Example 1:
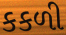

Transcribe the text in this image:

કકળી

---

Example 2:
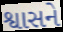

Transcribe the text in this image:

શ્વાસને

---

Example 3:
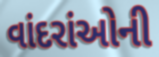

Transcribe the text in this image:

વાંદરાંઓની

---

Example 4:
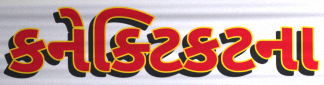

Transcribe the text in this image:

કનેક્ટિકટના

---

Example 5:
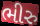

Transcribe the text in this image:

ભીરુ